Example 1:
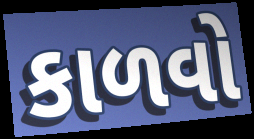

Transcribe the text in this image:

કાળવો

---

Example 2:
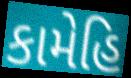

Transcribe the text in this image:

કામેહિ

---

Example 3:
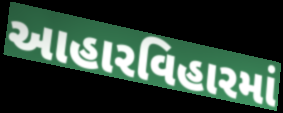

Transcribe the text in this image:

આહારવિહારમાં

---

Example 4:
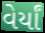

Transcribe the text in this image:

વેર્યાં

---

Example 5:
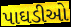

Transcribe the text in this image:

પાઘડીઓ